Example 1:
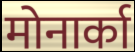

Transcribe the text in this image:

मोनार्का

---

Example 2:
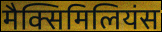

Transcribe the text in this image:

मैक्सिमिलियंस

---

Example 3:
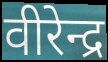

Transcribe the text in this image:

वीरेन्द्र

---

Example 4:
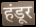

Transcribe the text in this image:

हंडूर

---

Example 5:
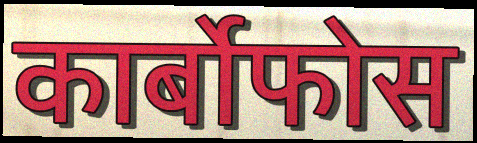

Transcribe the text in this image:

कार्बोफोस